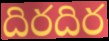
దిరదిర